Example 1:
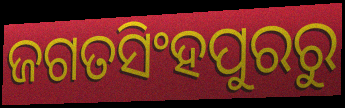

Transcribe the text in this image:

ଜଗତସିଂହପୁରରୁ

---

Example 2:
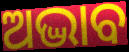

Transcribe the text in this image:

ଅଦ୍ଭାବ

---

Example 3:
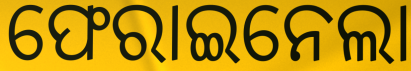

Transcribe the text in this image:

ଫେରାଇନେଲା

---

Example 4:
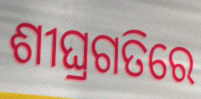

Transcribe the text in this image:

ଶୀଘ୍ରଗତିରେ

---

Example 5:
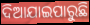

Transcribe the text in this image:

ଦିଆଯାଇପାରୁଛି